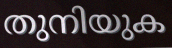
തുനിയുക